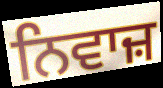
ਨਿਵਾਜ਼